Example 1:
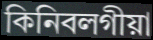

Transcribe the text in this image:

কিনিবলগীয়া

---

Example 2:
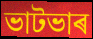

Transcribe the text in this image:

ভাটভাৰ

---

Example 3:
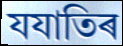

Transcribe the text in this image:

যযাতিৰ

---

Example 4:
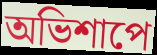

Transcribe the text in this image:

অভিশাপে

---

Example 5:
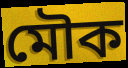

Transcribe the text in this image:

মৌক